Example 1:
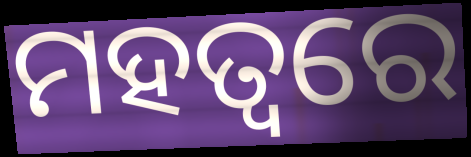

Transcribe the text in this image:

ମହତ୍ୱରେ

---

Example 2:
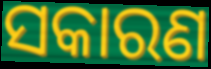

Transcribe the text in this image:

ସକାରଣ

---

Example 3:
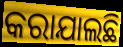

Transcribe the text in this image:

କରାଯାଲଛି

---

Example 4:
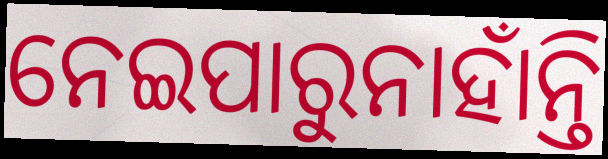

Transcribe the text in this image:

ନେଇପାରୁନାହାଁନ୍ତି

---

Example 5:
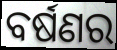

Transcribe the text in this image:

ବର୍ଷଣର